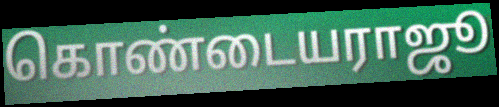
கொண்டையராஜூ